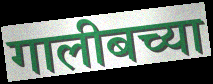
गालीबच्या